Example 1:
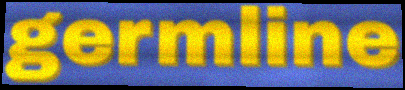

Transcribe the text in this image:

germline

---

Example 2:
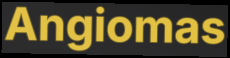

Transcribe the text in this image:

Angiomas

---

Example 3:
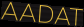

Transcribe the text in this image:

AADAT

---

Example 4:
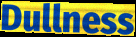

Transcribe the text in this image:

Dullness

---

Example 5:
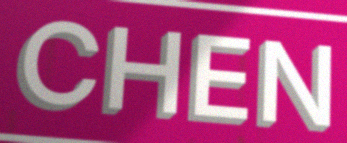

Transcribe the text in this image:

CHEN